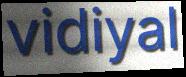
vidiyal